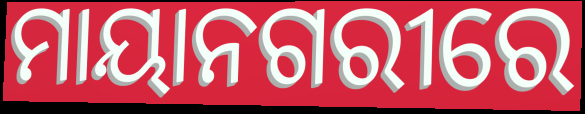
ମାୟାନଗରୀରେ